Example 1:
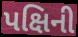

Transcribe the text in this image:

પક્ષિની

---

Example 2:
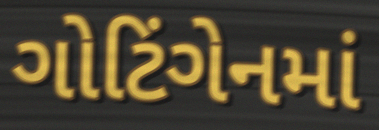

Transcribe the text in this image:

ગોટિંગેનમાં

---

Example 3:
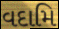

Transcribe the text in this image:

વદામિ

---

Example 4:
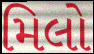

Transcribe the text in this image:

મિલો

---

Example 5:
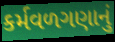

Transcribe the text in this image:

કર્મવળગણાનું